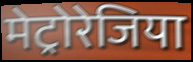
मेट्रोरेजिया